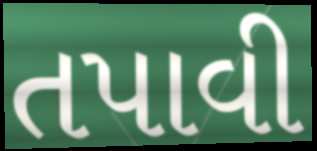
તપાવી